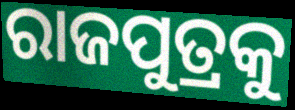
ରାଜପୁତ୍ରକୁ